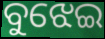
ବୁଝେଇ